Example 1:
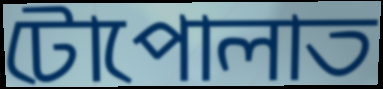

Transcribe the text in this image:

টোপোলাত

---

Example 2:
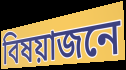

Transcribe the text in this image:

বিষয়াজনে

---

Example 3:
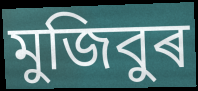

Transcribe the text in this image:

মুজিবুৰ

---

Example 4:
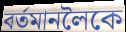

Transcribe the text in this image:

বৰ্তমানলৈকে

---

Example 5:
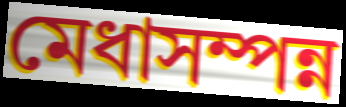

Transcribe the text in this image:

মেধাসম্পন্ন